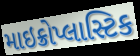
માઇક્રોપ્લાસ્ટિક